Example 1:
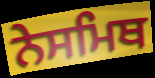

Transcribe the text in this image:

ਨੇਸਮਿਥ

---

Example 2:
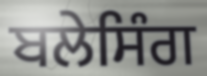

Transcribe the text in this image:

ਬਲੇਸਿੰਗ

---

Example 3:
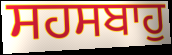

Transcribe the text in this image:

ਸਹਸਬਾਹੁ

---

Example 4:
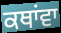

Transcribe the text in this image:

ਕਥਾਂਵਾ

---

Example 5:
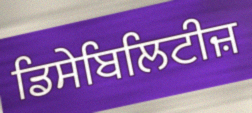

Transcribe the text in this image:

ਡਿਸੇਬਿਲਿਟੀਜ਼